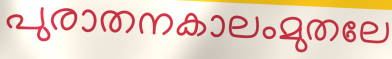
പുരാതനകാലംമുതലേ